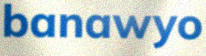
banawyo